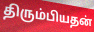
திரும்பியதன்